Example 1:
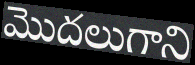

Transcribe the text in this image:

మొదలుగాని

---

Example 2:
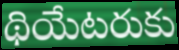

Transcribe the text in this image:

థియేటరుకు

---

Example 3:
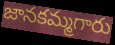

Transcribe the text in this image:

జానకమ్మగారు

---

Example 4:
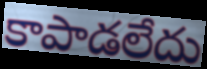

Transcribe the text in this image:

కాపాడలేదు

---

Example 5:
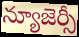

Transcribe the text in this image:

న్యూజెర్సీ